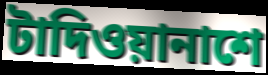
টাদিওয়ানাশে